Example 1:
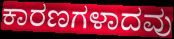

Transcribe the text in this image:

ಕಾರಣಗಳಾದವು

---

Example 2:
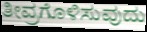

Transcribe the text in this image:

ತೀವ್ರಗೊಳಿಸುವುದು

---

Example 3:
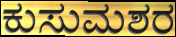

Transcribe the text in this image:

ಕುಸುಮಶರ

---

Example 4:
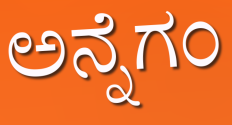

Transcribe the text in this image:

ಅನ್ನೆಗಂ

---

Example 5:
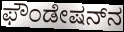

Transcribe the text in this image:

ಫೌಂಡೇಷನ್‌ನ